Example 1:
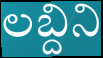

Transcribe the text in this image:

లబ్దిని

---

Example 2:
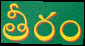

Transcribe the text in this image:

తీరం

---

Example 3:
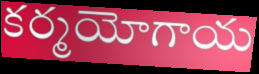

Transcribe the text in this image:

కర్మయోగాయ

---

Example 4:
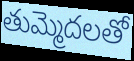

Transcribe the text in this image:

తుమ్మెదలతో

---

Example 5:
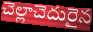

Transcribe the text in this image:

చెల్లాచెదురైన